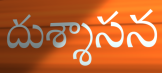
దుశ్శాసన